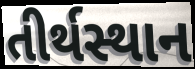
તીર્થસ્થાન